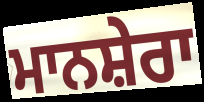
ਮਾਨਸ਼ੇਰਾ